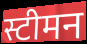
स्टीमन